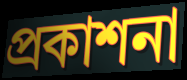
প্ৰকাশনা